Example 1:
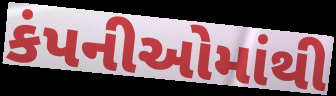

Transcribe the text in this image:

કંપનીઓમાંથી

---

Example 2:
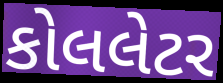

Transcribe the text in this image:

કોલલેટર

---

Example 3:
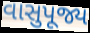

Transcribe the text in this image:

વાસુપૂજ્ય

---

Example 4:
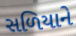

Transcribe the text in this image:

સળિયાને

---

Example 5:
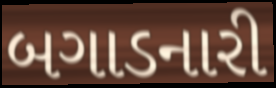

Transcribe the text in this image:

બગાડનારી